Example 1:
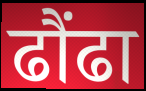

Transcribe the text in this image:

ढौंढा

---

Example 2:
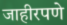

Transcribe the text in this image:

जाहीरपणे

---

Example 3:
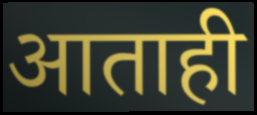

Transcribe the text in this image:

आताही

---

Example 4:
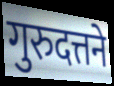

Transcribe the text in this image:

गुरुदत्तने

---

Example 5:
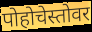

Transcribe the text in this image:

पोहोचेस्तोवर